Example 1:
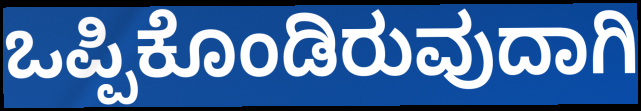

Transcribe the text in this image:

ಒಪ್ಪಿಕೊಂಡಿರುವುದಾಗಿ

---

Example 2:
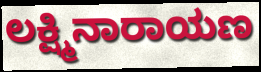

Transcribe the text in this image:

ಲಕ್ಷ್ಮಿನಾರಾಯಣ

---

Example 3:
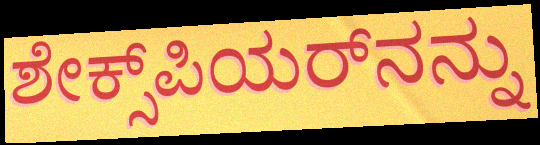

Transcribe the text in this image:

ಶೇಕ್ಸ್‌ಪಿಯರ್‌ನನ್ನು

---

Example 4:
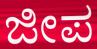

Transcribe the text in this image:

ಜೀಪ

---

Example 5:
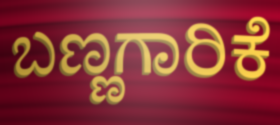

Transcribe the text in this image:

ಬಣ್ಣಗಾರಿಕೆ